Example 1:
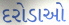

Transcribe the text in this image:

દરોડાઓ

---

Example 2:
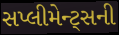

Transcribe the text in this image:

સપ્લીમેન્ટ્સની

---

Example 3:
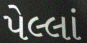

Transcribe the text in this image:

પેલ્લાં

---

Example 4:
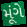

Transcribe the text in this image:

મૂંગે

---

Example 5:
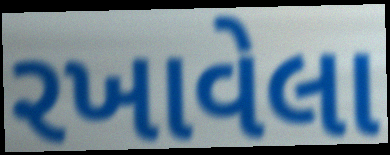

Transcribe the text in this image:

રખાવેલા